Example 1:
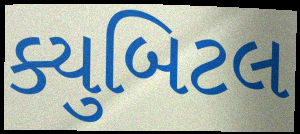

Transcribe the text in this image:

ક્યુબિટલ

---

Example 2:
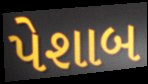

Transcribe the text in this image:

પેશાબ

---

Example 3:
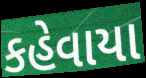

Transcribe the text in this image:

કહેવાયા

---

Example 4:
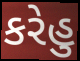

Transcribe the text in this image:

કરેહુ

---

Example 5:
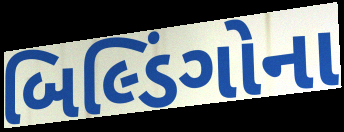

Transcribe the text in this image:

બિલ્ડિંગોના